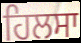
ਹਿਲਸਾ